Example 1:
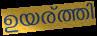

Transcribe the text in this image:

ഉയര്ത്തി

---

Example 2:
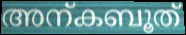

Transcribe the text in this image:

അന്കബൂത്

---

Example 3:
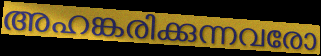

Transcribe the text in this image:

അഹങ്കരിക്കുന്നവരോ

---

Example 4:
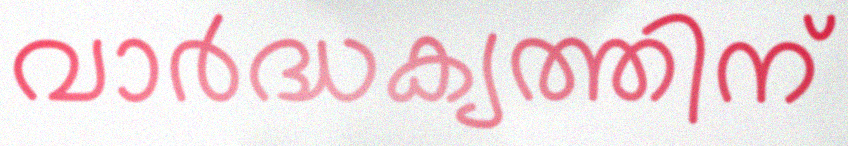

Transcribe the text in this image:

വാർദ്ധക്യത്തിന്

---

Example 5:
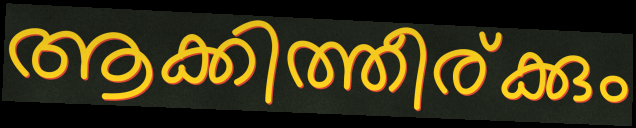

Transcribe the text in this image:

ആക്കിത്തീര്ക്കും